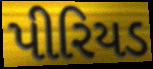
પીરિયડ